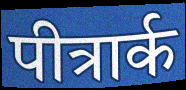
पीत्रार्क